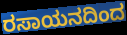
ರಸಾಯನದಿಂದ